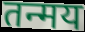
तन्मय